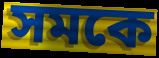
সমকে